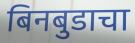
बिनबुडाचा